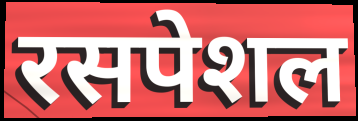
रसपेशल